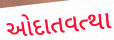
ઓદાતવત્થા